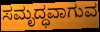
ಸಮೃದ್ಧವಾಗುವ